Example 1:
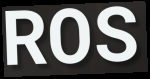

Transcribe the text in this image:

ROS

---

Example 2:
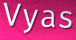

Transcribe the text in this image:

Vyas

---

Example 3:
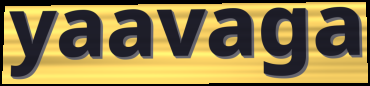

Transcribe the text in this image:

yaavaga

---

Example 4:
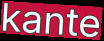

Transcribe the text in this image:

kante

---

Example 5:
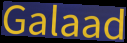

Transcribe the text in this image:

Galaad